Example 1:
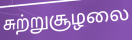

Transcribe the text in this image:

சுற்றுசூழலை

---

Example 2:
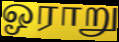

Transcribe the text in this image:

ஓராறு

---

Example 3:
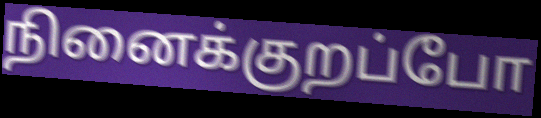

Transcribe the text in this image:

நினைக்குறப்போ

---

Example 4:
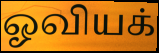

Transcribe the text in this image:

ஓவியக்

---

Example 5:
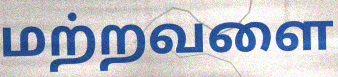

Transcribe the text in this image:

மற்றவளை